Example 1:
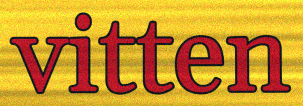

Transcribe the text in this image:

vitten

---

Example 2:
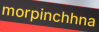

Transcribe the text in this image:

morpinchhna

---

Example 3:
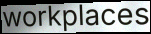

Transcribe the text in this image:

workplaces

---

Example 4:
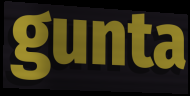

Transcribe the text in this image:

gunta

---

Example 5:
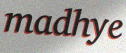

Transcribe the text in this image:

madhye